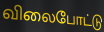
விலைபோட்டு